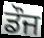
ਡੌਜ